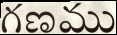
గణము